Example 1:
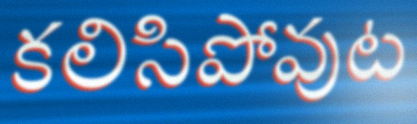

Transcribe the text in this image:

కలిసిపోవుట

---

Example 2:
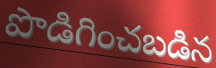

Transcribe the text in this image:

పొడిగించబడిన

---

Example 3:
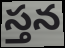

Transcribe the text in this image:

స్తన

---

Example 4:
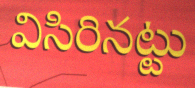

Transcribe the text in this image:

విసిరినట్టు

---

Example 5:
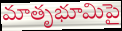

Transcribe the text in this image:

మాతృభూమిపై